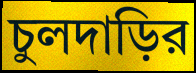
চুলদাড়ির